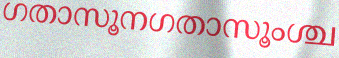
ഗതാസൂനഗതാസൂംശ്ച